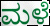
ಮಳೆ